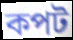
কপট